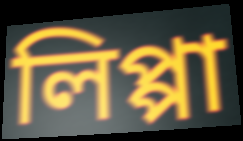
লিপ্পা